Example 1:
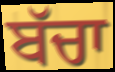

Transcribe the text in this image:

ਬੱਚਾ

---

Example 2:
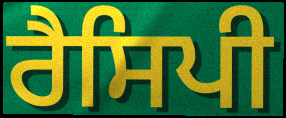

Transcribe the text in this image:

ਰੈਸਿਪੀ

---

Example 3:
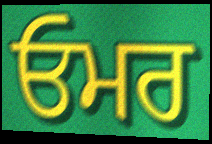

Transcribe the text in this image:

ਓਮਰ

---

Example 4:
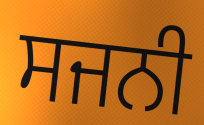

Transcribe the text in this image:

ਸਜਨੀ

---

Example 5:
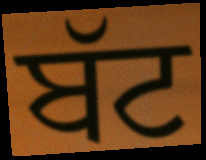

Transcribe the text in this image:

ਬੱਟ